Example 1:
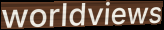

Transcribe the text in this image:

worldviews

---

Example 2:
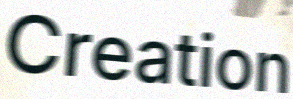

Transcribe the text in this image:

Creation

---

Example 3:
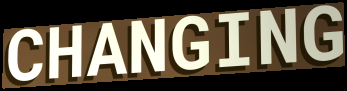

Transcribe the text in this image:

CHANGING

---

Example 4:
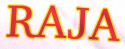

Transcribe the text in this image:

RAJA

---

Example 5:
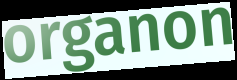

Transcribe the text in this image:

organon